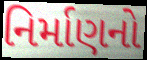
નિર્માણનો